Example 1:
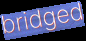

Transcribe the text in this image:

bridged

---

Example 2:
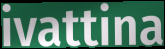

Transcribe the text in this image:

ivattina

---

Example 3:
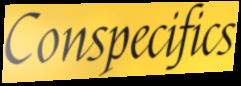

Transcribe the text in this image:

Conspecifics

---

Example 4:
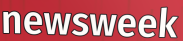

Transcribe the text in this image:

newsweek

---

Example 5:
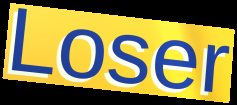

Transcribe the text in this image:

Loser